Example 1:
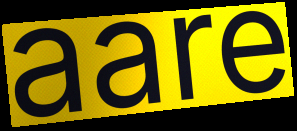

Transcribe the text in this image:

aare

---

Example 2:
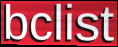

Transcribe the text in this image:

bclist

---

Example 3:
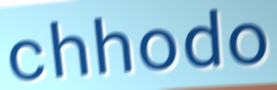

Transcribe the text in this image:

chhodo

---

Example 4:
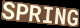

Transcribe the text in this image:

SPRING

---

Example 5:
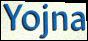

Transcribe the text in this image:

Yojna